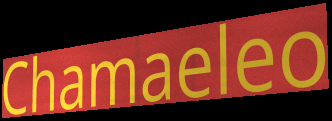
Chamaeleo